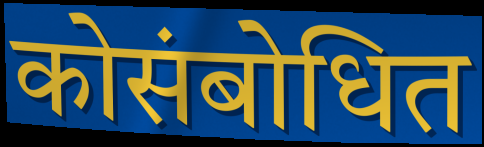
कोसंबोधित